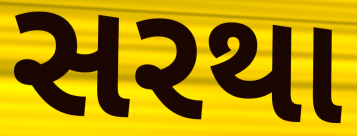
સરથા